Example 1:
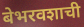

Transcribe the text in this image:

बेभरवशाची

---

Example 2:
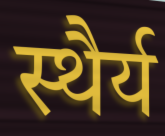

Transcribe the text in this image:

स्थैर्य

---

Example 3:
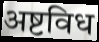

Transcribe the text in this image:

अष्टविध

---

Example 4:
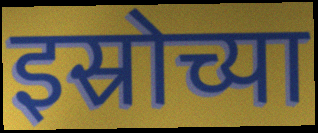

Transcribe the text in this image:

इस्रोच्या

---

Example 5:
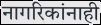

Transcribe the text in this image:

नागरिकांनाही